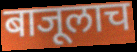
बाजूलाच